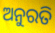
ଅନୁରତି